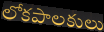
లోకపాలకులు